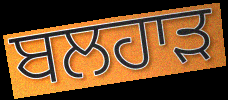
ਬਲਹਾੜ